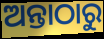
ଅନ୍ତାଠାରୁ